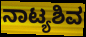
ನಾಟ್ಯಶಿವ